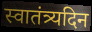
स्वातंत्र्यदिन